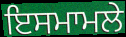
ਇਸਮਾਮਲੇ